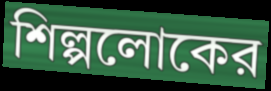
শিল্পলোকের